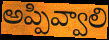
అప్పివ్వాలి